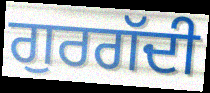
ਗੁਰਗੱਦੀ